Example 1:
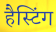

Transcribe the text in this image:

हैस्टिंग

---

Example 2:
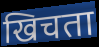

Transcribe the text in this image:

खिचता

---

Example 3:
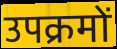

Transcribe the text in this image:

उपक्रमों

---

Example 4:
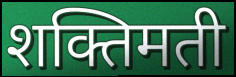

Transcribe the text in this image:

शक्तिमती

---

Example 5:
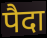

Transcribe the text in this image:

पैदा